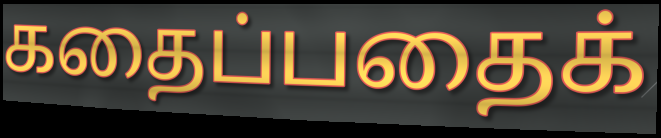
கதைப்பதைக்